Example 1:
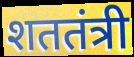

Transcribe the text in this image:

शततंत्री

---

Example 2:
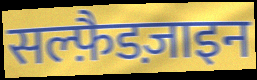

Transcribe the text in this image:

सल्फ़ैडज़ाइन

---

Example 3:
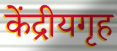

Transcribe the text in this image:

केंद्रीयगृह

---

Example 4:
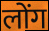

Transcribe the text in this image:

लोंग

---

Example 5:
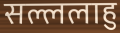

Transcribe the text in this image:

सल्ललाहु